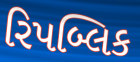
રિપબ્લિક